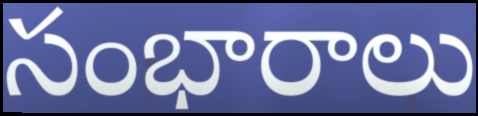
సంభారాలు